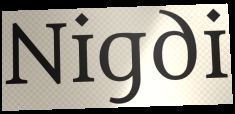
Nigdi